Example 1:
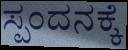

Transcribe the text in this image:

ಸ್ಪಂದನಕ್ಕೆ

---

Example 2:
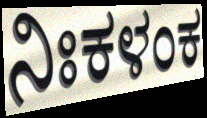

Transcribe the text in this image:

ನಿಃಕಳಂಕ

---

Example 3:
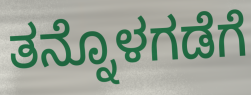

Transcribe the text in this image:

ತನ್ನೊಳಗಡೆಗೆ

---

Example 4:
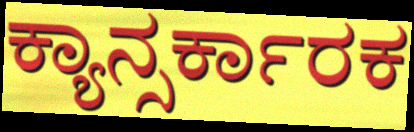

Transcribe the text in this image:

ಕ್ಯಾನ್ಸರ್ಕಾರಕ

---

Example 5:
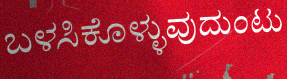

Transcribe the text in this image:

ಬಳಸಿಕೊಳ್ಳುವುದುಂಟು